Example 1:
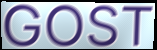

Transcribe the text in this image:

GOST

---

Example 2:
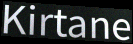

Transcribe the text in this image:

Kirtane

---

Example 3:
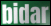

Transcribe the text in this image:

bidar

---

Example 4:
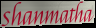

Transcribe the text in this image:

shanmatha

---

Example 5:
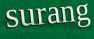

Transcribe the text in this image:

surang